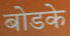
बोडके